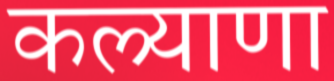
कल्याणा